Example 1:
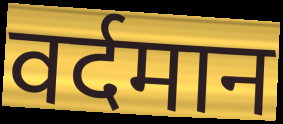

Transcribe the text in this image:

वर्दमान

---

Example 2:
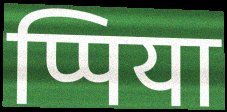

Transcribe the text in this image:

प्पिया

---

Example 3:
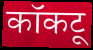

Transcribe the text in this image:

कॉकटू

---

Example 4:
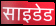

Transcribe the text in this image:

साइडेड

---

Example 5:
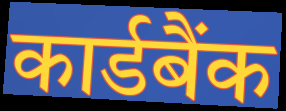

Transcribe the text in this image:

कार्डबैंक